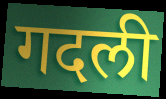
गदली